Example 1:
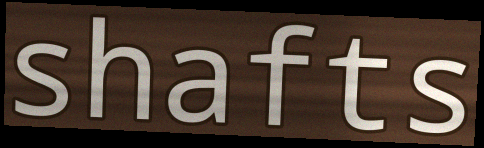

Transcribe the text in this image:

shafts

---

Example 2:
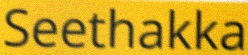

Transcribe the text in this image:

Seethakka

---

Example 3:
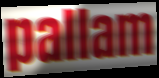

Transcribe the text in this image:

pallam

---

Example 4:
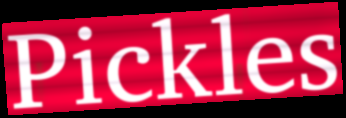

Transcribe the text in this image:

Pickles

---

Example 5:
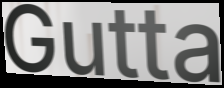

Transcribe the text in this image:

Gutta